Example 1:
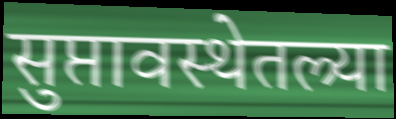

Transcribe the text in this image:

सुप्तावस्थेतल्या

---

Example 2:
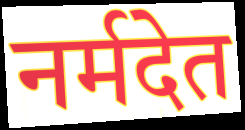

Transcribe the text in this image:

नर्मदेत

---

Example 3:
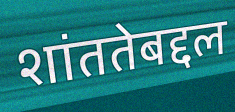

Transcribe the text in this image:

शांततेबद्दल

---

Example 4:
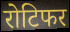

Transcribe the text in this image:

रोटिफर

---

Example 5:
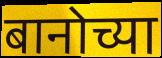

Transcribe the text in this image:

बानोच्या